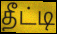
தீட்டி